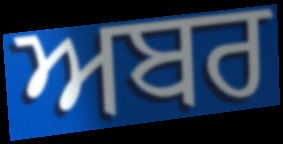
ਅਬਰ